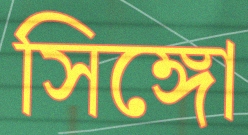
সিঙ্গো